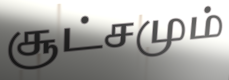
சூட்சமும்